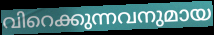
വിറെക്കുന്നവനുമായ